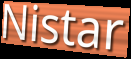
Nistar